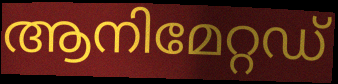
ആനിമേറ്റഡ്